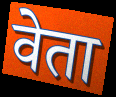
वेता